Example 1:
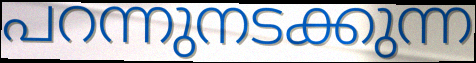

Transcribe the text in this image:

പറന്നുനടക്കുന്ന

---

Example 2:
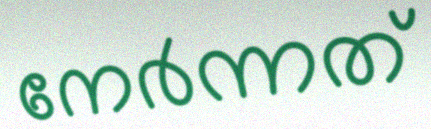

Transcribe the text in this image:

നേർന്നത്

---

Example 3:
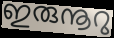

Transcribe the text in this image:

ഇരുനൂറു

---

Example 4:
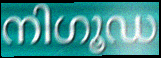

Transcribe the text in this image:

നിഗൂഡ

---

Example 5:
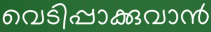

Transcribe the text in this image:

വെടിപ്പാക്കുവാൻ